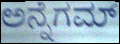
ಅನ್ನೆಗಮ್